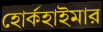
হোর্কহাইমার